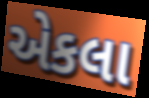
એકલા